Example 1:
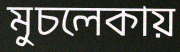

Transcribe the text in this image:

মুচলেকায়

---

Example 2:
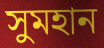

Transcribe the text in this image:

সুমহান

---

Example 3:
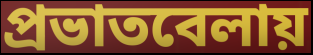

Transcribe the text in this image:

প্রভাতবেলায়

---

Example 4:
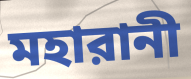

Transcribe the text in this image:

মহারানী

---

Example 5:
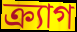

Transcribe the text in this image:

ক্র্যাগ